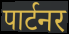
पार्टनर